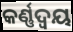
କର୍ଣ୍ଣଦ୍ୱୟ